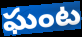
ఘంట